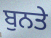
ਬੁਨਤੇ